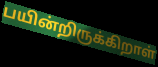
பயின்றிருக்கிறாள்